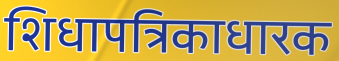
शिधापत्रिकाधारक